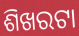
ଶିଖରଟା